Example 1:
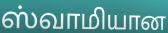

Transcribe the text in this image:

ஸ்வாமியான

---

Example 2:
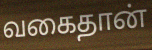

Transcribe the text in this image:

வகைதான்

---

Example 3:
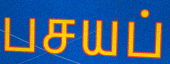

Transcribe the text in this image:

பசயப்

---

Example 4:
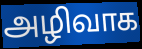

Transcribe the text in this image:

அழிவாக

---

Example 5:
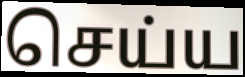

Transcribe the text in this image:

செய்ய